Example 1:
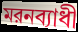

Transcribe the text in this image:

মরনব্যাধী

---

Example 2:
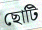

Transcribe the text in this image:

ছোটি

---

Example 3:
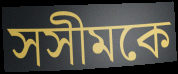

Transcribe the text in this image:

সসীমকে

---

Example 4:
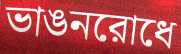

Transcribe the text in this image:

ভাঙনরোধে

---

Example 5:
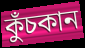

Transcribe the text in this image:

কুঁচকান